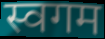
स्वगम